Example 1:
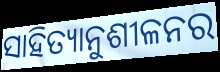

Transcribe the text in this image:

ସାହିତ୍ୟାନୁଶୀଳନର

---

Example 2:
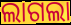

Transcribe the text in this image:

ଲାଗଲା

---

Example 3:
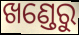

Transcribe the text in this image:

ଖଣ୍ଡେରୁ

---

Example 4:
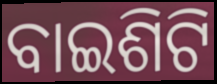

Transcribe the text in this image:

ବାଇଶିଟି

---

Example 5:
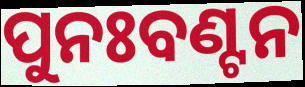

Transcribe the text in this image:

ପୁନଃବଣ୍ଟନ